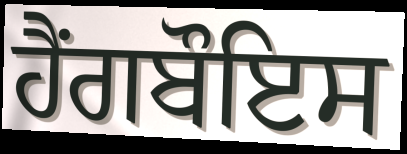
ਹੈਂਗਬੌਇਸ